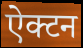
ऐक्टन